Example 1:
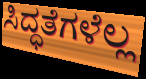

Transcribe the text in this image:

ಸಿದ್ಧತೆಗಳೆಲ್ಲ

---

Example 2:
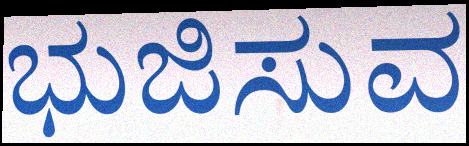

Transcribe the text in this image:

ಭುಜಿಸುವ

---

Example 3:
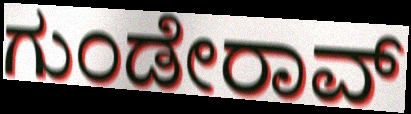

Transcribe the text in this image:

ಗುಂಡೇರಾವ್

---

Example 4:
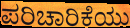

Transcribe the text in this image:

ಪರಿಚಾರಿಕೆಯು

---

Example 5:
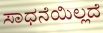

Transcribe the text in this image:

ಸಾಧನೆಯಿಲ್ಲದೆ